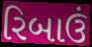
રિબાઉં